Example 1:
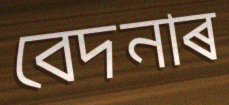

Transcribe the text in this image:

বেদনাৰ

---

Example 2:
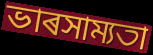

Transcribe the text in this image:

ভাৰসাম্যতা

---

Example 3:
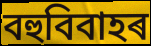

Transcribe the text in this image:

বহুবিবাহৰ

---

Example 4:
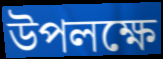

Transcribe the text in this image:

উপলক্ষে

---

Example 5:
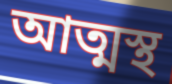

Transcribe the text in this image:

আত্মস্থ